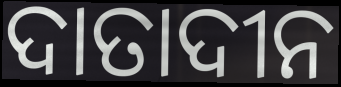
ଦାତାଦୀନ